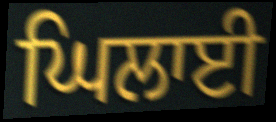
ਘਿਲਾਈ